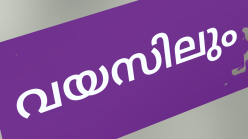
വയസിലും